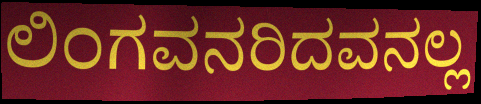
ಲಿಂಗವನರಿದವನಲ್ಲ